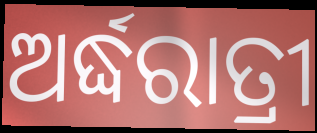
ଅର୍ଦ୍ଧରାତ୍ରୀ